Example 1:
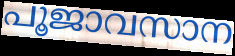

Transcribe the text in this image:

പൂജാവസാന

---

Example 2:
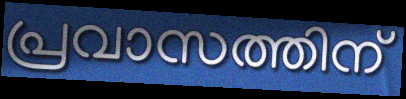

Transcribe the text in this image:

പ്രവാസത്തിന്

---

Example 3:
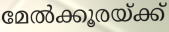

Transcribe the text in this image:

മേൽക്കൂരയ്ക്ക്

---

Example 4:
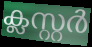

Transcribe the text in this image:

ക്ലസ്റ്റർ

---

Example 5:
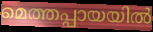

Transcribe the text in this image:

മെത്തപ്പായയിൽ